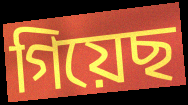
গিয়েছ